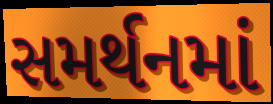
સમર્થનમાં